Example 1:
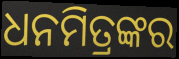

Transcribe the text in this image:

ଧନମିତ୍ରଙ୍କର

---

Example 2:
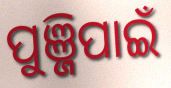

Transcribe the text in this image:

ପୁଞ୍ଜିପାଇଁ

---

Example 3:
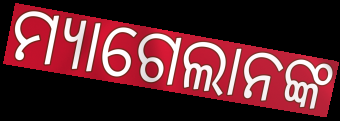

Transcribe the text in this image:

ମ୍ୟାଗେଲାନଙ୍କ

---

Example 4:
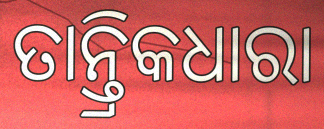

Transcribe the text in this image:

ତାନ୍ତ୍ରିକଧାରା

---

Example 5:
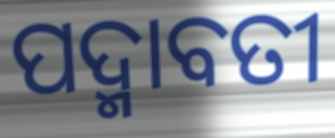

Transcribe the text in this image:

ପଦ୍ମାବତୀ